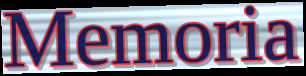
Memoria